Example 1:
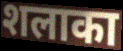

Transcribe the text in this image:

शलाका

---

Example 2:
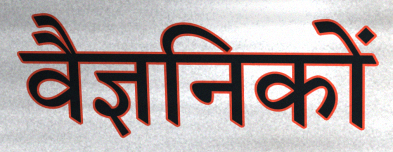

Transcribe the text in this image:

वैज्ञनिकों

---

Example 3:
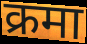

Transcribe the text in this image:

क्रमा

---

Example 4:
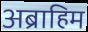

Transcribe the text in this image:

अब्राहिम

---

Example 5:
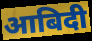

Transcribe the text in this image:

आबिदी